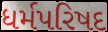
ધર્મપરિષદ